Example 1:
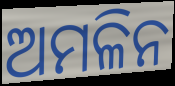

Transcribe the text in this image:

ଅମଳିନ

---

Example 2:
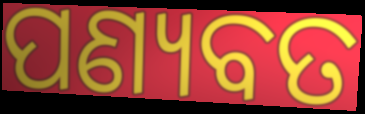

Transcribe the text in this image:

ପଣ୍ୟବତ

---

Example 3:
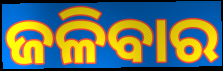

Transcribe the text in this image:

ଜଳିବାର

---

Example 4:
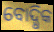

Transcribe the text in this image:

ବୋଦ୍ଧିକ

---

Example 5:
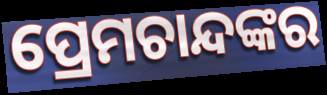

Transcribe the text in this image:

ପ୍ରେମଚାନ୍ଦଙ୍କର